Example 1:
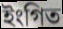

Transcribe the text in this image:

ইংগিত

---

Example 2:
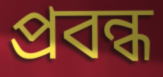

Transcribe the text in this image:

প্ৰবন্ধ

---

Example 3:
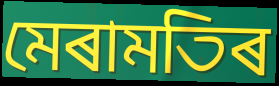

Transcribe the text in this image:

মেৰামতিৰ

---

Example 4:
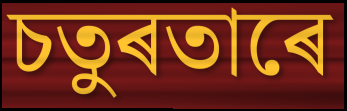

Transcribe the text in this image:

চতুৰতাৰে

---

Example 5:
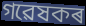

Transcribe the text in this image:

গৱেষকৰ